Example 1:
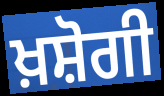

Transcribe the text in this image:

ਖ਼ਸ਼ੋਗੀ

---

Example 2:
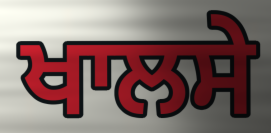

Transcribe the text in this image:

ਖਾਲਸੇ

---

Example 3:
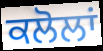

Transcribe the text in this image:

ਕਲੋਲਾਂ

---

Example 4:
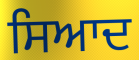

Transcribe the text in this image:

ਸਿਆਦ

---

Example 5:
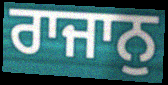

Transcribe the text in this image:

ਰਾਜਾਨੁ